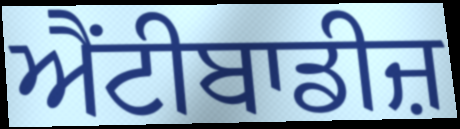
ਐਂਟੀਬਾਡੀਜ਼